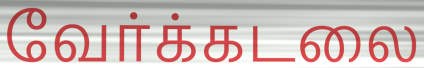
வேர்க்கடலை